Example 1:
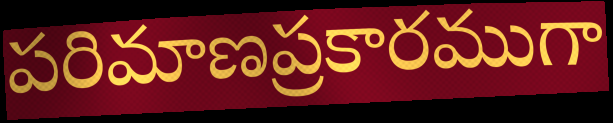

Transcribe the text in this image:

పరిమాణప్రకారముగా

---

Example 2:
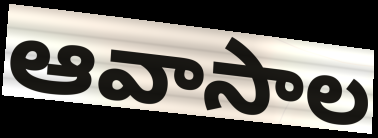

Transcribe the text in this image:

ఆవాసాల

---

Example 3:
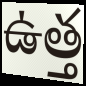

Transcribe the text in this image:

ఉత్త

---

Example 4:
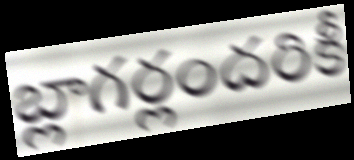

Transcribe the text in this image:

బ్లాగర్లందరికీ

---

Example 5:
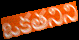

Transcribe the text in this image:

ఒకతనిని